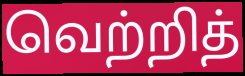
வெற்றித்